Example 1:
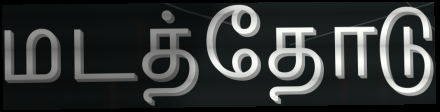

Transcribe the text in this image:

மடத்தோடு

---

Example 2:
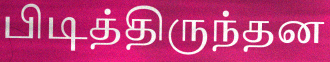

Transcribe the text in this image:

பிடித்திருந்தன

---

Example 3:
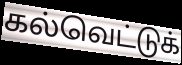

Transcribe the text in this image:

கல்வெட்டுக்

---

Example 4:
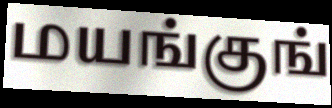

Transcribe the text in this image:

மயங்குங்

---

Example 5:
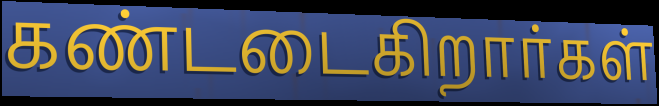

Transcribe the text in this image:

கண்டடைகிறார்கள்